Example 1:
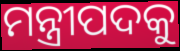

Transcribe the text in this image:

ମନ୍ତ୍ରୀପଦକୁ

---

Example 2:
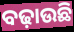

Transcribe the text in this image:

ବଢ଼ାଉଛି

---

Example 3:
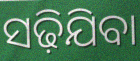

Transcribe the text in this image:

ସଢ଼ିଯିବା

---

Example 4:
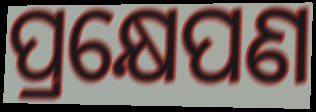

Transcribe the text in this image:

ପ୍ରକ୍ଷେପଣ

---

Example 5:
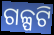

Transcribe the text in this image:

ଗଳ୍ପଟି